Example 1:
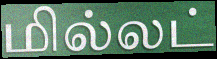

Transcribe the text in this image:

மில்லட்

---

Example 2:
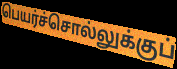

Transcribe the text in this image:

பெயர்ச்சொல்லுக்குப்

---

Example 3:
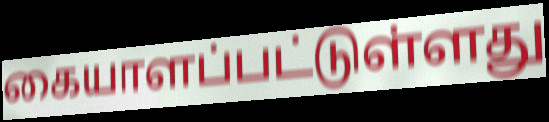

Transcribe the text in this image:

கையாளப்பட்டுள்ளது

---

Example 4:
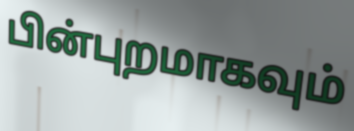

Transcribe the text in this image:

பின்புறமாகவும்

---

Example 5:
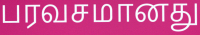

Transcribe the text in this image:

பரவசமானது